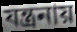
যন্ত্রনায়